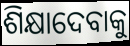
ଶିକ୍ଷାଦେବାକୁ